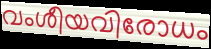
വംശീയവിരോധം